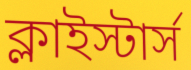
ক্লাইস্টার্স